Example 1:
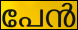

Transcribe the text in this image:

പേൻ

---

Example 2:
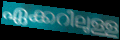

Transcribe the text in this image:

ഏക്കറിലുള്ള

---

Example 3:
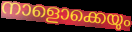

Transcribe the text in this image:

നാളൊക്കെയും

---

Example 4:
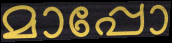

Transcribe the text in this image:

മാപ്പോ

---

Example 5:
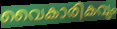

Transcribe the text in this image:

വൈകാരികവും